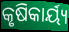
କୃଷିକାର୍ୟ୍ୟ